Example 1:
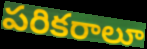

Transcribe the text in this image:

పరికరాలూ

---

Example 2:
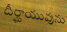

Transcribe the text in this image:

దీర్ఘాయువును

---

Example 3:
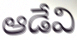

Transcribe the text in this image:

ఆడేవి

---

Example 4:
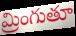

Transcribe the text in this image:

మ్రింగుతూ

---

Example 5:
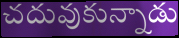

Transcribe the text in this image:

చదువుకున్నాడు